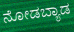
ನೋಡಬ್ಯಾಡ